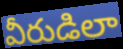
వీరుడిలా